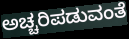
ಅಚ್ಚರಿಪಡುವಂತೆ